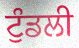
ਟੁੰਡਲੀ